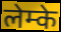
लेम्के